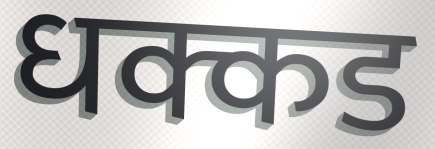
धक्कड